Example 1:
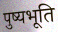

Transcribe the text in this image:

पुष्यभूति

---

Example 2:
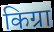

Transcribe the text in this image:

किग्रा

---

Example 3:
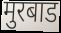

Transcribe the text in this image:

मुरबाड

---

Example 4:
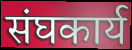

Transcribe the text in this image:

संघकार्य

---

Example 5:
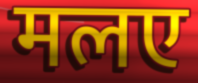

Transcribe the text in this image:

मलए